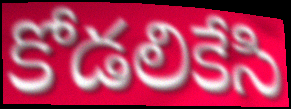
కోడలికేసి